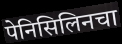
पेनिसिलिनचा